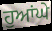
ਹੁਆਂਘੇ